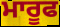
ਮਾਰੂਫ